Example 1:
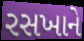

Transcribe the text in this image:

રસખાને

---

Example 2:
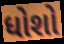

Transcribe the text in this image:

ધોશો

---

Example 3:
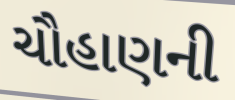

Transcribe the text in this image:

ચૌહાણની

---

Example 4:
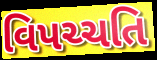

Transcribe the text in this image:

વિપચ્ચતિ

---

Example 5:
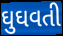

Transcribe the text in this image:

ઘુઘવતી